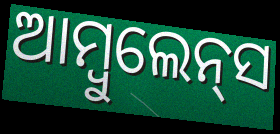
ଆମ୍ବୁଲେନ୍‍ସ